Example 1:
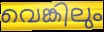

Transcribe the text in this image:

വെങ്കിലും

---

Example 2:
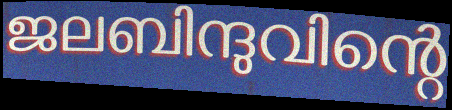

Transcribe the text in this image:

ജലബിന്ദുവിന്റെ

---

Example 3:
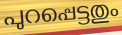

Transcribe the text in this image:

പുറപ്പെട്ടതും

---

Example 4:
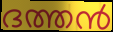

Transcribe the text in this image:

ദത്തൻ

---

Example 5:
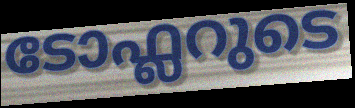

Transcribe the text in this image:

ടോഫ്ലറുടെ